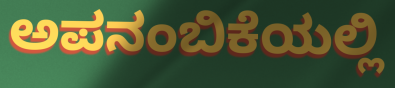
ಅಪನಂಬಿಕೆಯಲ್ಲಿ